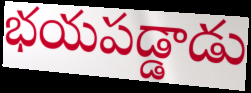
భయపడ్డాడు